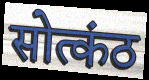
सोत्कंठ